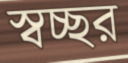
স্বচ্ছর